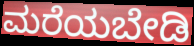
ಮರೆಯಬೇಡಿ